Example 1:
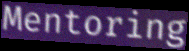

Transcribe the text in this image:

Mentoring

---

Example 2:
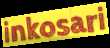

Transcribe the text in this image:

inkosari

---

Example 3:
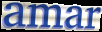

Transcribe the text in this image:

amar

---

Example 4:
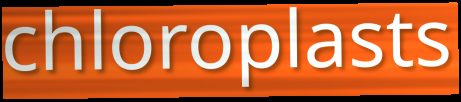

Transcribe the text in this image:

chloroplasts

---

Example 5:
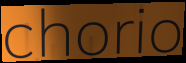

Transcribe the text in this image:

chorio